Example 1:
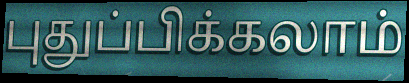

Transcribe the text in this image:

புதுப்பிக்கலாம்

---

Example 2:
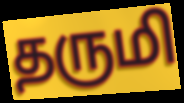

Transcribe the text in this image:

தருமி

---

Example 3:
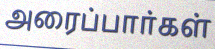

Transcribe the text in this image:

அரைப்பார்கள்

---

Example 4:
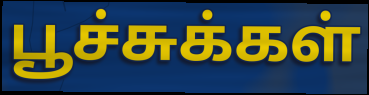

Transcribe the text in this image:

பூச்சுக்கள்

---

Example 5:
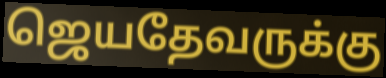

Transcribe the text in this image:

ஜெயதேவருக்கு